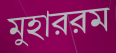
মুহাররম